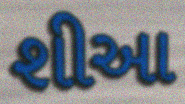
શીઆ